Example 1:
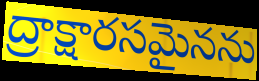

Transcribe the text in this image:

ద్రాక్షారసమైనను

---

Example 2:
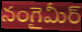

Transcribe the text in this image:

నంగైమీర్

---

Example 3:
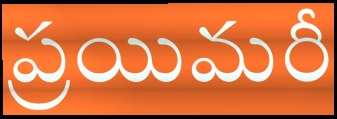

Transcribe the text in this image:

ప్రయిమరీ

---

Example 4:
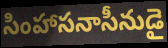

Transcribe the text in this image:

సింహాసనాసీనుడై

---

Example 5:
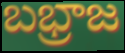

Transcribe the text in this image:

బభ్రాజ